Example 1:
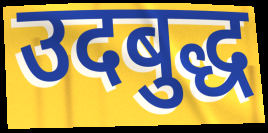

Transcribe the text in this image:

उदबुद्ध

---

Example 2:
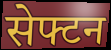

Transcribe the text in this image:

सेफ्टन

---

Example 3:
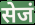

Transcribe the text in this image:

सेजं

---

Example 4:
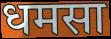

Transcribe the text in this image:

धमसा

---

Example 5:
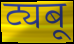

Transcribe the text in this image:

ट्यबू